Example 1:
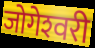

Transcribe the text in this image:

जोगेश्‍वरी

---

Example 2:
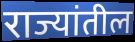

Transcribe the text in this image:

राज्यांतील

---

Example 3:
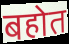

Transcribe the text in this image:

बहोत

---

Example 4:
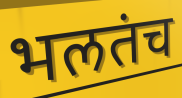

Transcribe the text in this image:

भलतंच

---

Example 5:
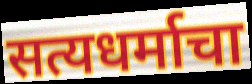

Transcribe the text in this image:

सत्यधर्माचा